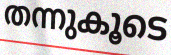
തന്നുകൂടെ